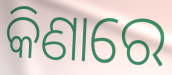
କିଣାରେ